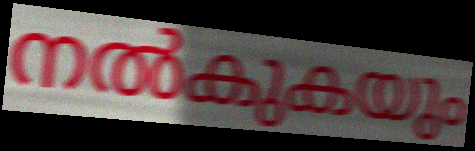
നൽകുകയും